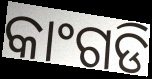
କାଂଗଡି